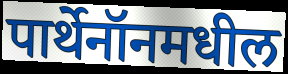
पार्थेनॉनमधील